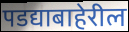
पडद्याबाहेरील